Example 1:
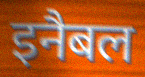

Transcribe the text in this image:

इनैबल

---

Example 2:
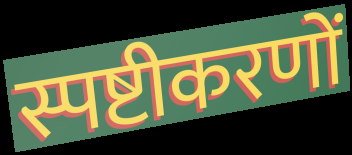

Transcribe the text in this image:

स्पष्टीकरणों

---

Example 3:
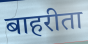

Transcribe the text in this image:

बाहरीता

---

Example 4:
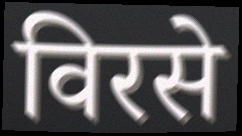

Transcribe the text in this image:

विरसे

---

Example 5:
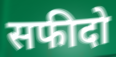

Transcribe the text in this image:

सफीदो